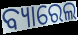
ବ୍ୟାରେଲ